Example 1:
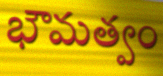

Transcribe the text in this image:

భౌమత్వం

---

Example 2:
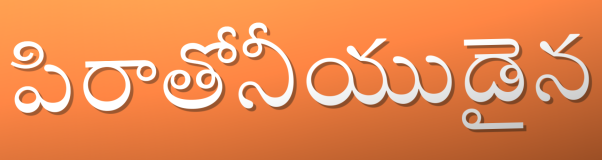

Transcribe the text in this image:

పిరాతోనీయుడైన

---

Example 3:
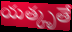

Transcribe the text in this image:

యత్కృతే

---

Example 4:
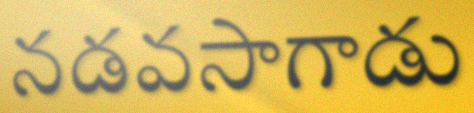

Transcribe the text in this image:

నడవసాగాడు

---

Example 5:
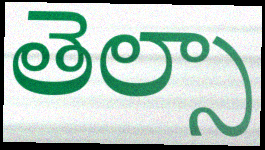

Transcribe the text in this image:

తెల్సా